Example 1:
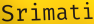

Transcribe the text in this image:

Srimati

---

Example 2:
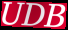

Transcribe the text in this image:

UDB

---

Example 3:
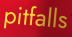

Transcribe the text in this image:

pitfalls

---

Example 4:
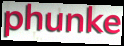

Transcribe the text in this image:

phunke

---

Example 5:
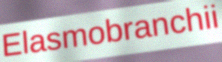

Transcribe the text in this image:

Elasmobranchii